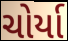
ચોર્યા